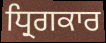
ਧ੍ਰਿਗਕਾਰ